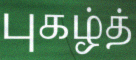
புகழ்த்